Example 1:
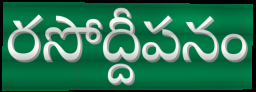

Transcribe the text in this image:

రసోద్దీపనం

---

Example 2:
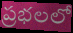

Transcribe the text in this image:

ప్రభలలో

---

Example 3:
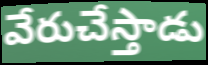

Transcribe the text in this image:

వేరుచేస్తాడు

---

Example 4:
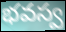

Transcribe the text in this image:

భవస్వ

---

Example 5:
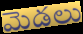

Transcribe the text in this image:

మెడలు